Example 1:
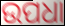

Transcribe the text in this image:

ଉପଧା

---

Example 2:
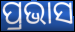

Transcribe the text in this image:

ପ୍ରଭାସ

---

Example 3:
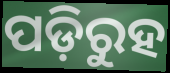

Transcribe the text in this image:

ପଡ଼ିରୁହ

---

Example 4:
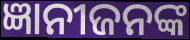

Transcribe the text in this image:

ଜ୍ଞାନୀଜନଙ୍କ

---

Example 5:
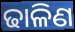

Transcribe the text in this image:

ଢାଳିଣ